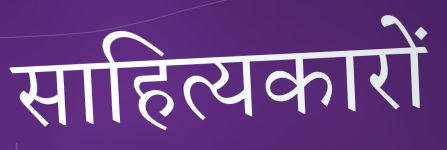
साहित्यकारों